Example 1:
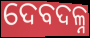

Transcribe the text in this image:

ଦେବଦଳ୍ନ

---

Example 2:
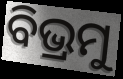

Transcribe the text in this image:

ବିଭ୍ରମୁ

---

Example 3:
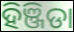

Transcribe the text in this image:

ହିଞ୍ଜିଡା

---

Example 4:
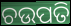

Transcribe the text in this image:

ଚଉପତି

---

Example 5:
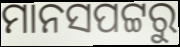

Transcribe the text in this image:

ମାନସପଟ୍ଟରୁ